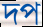
দপ